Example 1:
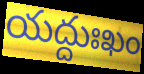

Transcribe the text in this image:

యద్దుఃఖం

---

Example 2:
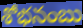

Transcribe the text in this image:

శోభనంబు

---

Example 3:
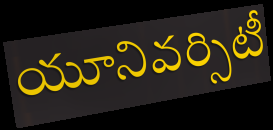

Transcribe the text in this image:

యూనివర్సిటీ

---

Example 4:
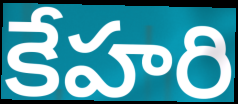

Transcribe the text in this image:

కేహరి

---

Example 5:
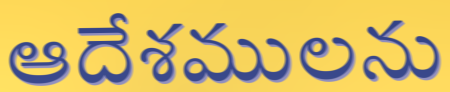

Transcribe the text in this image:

ఆదేశములను